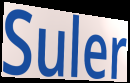
Suler